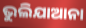
ଭୁଲିଯାଆନା